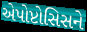
એપોપ્ટોસિસને